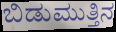
ಬಿಡುಮುತ್ತಿನ